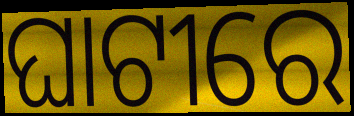
ଘାଟୀରେ